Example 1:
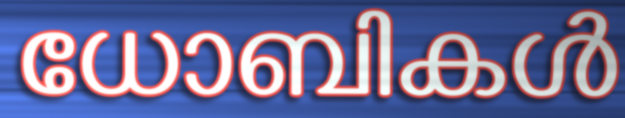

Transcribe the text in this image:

ധോബികൾ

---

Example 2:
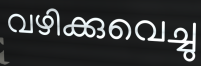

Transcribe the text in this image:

വഴിക്കുവെച്ചു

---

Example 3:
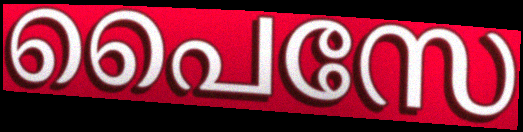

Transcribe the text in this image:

പൈസേ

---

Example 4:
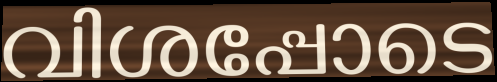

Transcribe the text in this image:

വിശപ്പോടെ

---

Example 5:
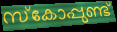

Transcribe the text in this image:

സ്കോപ്പുണ്ട്